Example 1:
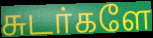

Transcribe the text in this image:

சுடர்களே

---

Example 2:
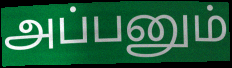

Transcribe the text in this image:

அப்பனும்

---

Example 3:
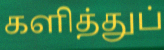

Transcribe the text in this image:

களித்துப்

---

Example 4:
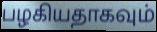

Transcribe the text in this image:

பழகியதாகவும்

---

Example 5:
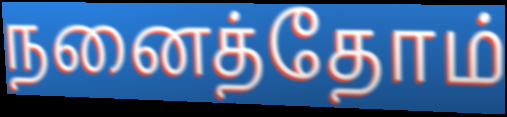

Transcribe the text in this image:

நனைத்தோம்